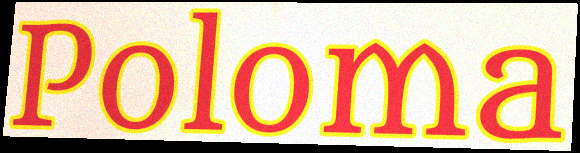
Poloma